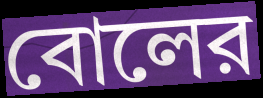
বোলের